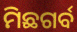
ମିଛଗର୍ବ